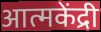
आत्मकेंद्री